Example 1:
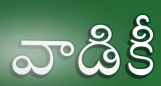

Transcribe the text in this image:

వాడికీ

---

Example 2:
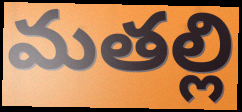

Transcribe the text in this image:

మతల్లి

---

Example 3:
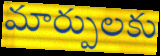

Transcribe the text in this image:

మార్పులకు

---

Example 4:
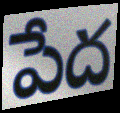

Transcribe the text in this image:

పేద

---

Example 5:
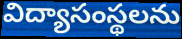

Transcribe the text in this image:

విద్యాసంస్థలను